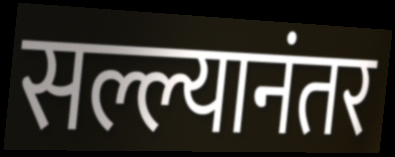
सल्ल्यानंतर